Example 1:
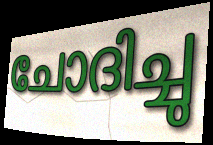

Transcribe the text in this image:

ചോദിച്ചു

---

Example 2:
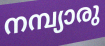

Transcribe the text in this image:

നമ്പ്യാരു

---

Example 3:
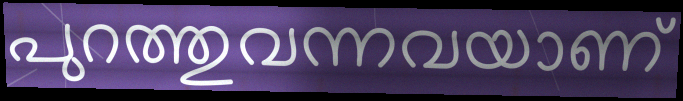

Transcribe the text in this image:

പുറത്തുവന്നവയാണ്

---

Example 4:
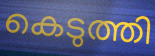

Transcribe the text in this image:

കെടുത്തി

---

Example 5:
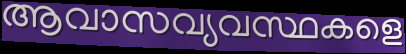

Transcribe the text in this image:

ആവാസവ്യവസ്ഥകളെ